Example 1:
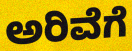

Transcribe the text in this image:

ಅರಿವೆಗೆ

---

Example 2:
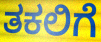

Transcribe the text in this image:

ತಕಲಿಗೆ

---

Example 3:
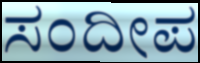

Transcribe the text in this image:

ಸಂದೀಪ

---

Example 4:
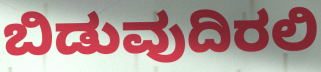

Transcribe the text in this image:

ಬಿಡುವುದಿರಲಿ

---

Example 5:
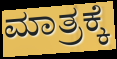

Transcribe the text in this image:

ಮಾತ್ರಕ್ಕೆ